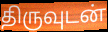
திருவுடன்